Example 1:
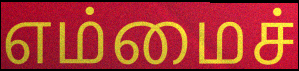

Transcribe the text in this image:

எம்மைச்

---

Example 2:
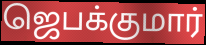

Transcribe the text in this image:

ஜெபக்குமார்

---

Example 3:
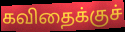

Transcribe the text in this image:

கவிதைக்குச்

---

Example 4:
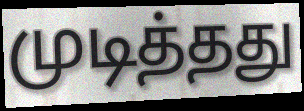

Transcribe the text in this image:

முடித்தது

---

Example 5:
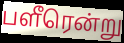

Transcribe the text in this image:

பளீரென்று